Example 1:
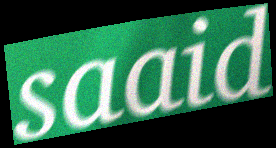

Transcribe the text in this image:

saaid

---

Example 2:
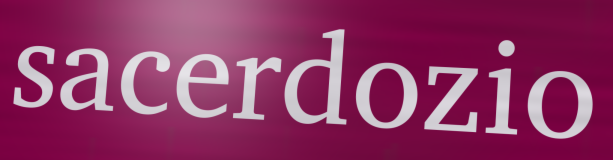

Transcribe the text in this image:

sacerdozio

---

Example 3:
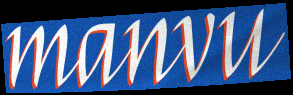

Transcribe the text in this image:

manvu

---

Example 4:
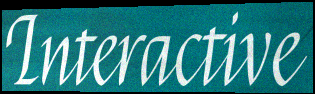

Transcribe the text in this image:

Interactive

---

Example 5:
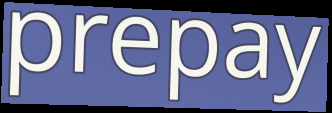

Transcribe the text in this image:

prepay